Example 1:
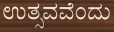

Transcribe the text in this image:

ಉತ್ಸವವೆಂದು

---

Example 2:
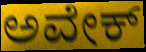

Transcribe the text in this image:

ಅವೇಕ್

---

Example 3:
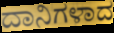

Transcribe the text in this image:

ದಾನಿಗಳಾದ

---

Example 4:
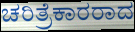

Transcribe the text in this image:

ಚರಿತ್ರೆಕಾರರಾದ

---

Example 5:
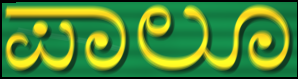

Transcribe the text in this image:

ಪಾಲೂ